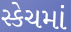
સ્કેચમાં